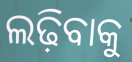
ଲଢ଼ିବାକୁ